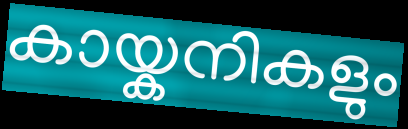
കായ്കനികളും